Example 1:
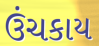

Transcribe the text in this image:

ઉંચકાય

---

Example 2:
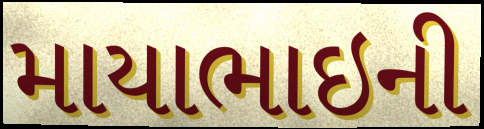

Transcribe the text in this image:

માયાભાઇની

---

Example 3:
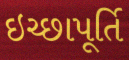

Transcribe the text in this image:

ઇચ્છાપૂર્તિ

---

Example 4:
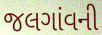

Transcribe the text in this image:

જલગાંવની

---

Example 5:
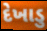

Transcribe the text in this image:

દેખાડુ